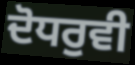
ਦੋਧਰੁਵੀ